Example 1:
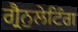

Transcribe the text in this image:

ਗ੍ਰੈਨੁਲੇਟਿੰਗ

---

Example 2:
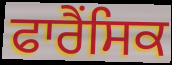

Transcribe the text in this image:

ਫਾਰੈਂਸਿਕ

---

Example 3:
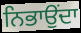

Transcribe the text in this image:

ਨਿਭਾਉਂਦਾ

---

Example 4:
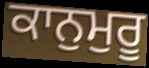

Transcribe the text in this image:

ਕਾਨੁਮੁਰੂ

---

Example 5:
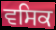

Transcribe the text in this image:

ਵਸਿਕ